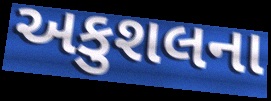
અકુશલના